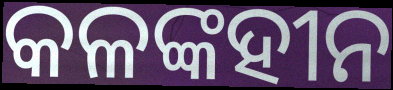
କଳଙ୍କହୀନ